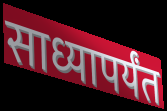
साध्यापर्यंत